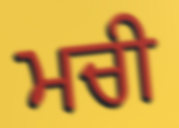
ਮਚੀ